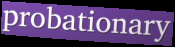
probationary